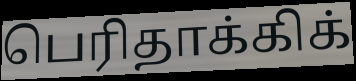
பெரிதாக்கிக்